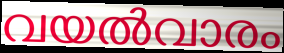
വയൽവാരം